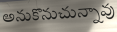
అనుకొనుచున్నావు